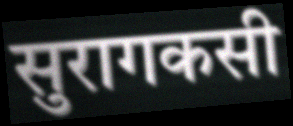
सुरागकसी